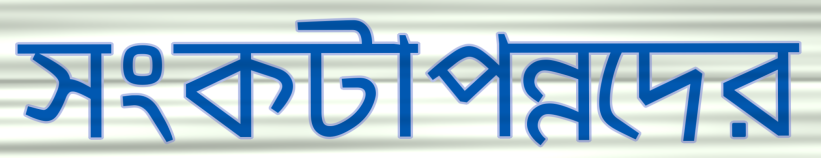
সংকটাপন্নদের